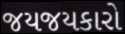
જયજયકારો